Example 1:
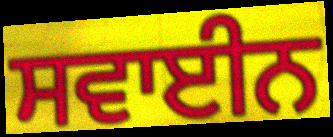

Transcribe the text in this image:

ਸਵਾਈਨ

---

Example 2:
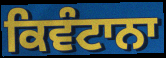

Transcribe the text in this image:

ਕਿਵੰਟਾਨਾ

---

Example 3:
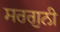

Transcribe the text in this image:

ਸਰਗੁਨੀ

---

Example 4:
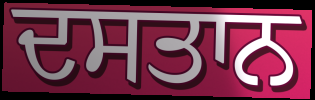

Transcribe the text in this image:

ਦਸਤਾਨ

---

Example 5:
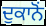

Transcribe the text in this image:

ਦੁਕਾਨੋਂ